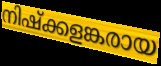
നിഷ്ക്കളങ്കരായ